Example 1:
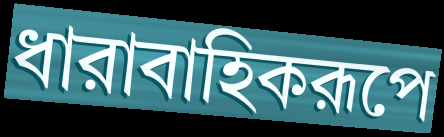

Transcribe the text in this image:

ধারাবাহিকরূপে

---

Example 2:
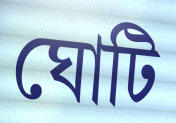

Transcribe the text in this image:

ঘোটি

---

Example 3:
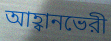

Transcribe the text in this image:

আহ্বানভেরী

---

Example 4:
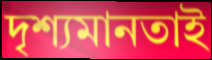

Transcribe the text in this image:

দৃশ্যমানতাই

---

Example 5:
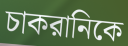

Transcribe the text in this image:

চাকরানিকে